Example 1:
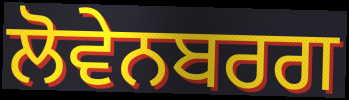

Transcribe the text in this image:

ਲੋਵੇਨਬਰਗ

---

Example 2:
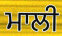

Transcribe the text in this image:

ਮਾਲੀ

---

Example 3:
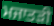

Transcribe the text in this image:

ਮਜਾਤੜੀ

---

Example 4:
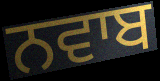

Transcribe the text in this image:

ਨਵਾਬ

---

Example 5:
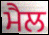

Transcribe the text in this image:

ਮੈਲ